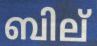
ബില്